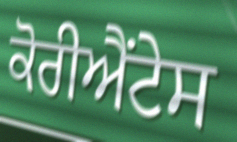
ਕੋਰੀਐਂਟੇਸ